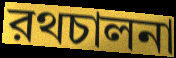
রথচালনা